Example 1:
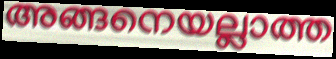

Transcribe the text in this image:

അങ്ങനെയല്ലാത്ത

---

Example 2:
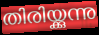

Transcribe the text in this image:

തിരിയ്ക്കുന്നു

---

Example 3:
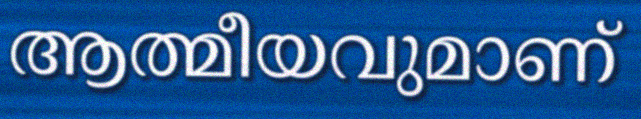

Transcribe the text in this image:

ആത്മീയവുമാണ്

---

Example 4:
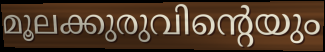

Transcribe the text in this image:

മൂലക്കുരുവിന്റെയും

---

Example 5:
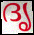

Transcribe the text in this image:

ദൃ